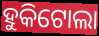
ହୁକିଟୋଲା